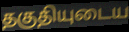
தகுதியுடைய